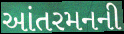
આંતરમનની